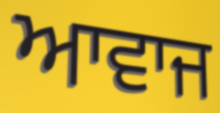
ਆਵਾਜ